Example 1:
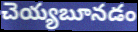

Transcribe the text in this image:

చెయ్యబూనడం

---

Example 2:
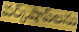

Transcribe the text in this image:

వర్క్‌షాప్‌లను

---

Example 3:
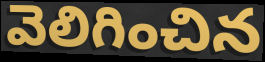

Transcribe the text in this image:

వెలిగించిన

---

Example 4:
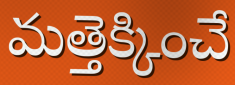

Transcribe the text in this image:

మత్తెక్కించే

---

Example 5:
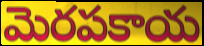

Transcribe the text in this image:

మెరపకాయ